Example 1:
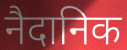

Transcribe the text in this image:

नैदानिक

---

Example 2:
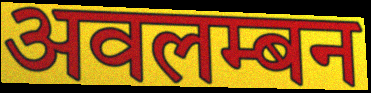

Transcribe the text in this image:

अवलम्बन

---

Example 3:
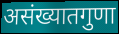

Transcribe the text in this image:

असंख्यातगुणा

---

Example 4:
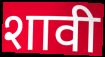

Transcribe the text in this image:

शावी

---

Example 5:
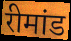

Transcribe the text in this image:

रीमांड